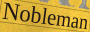
Nobleman